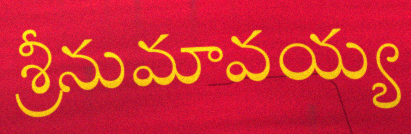
శ్రీనుమావయ్య